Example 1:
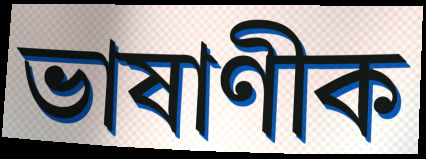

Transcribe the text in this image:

ভাষাণীক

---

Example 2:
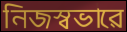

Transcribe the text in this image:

নিজস্বভাৱে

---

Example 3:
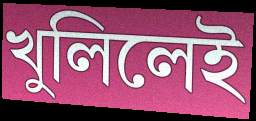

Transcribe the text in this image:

খুলিলেই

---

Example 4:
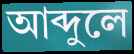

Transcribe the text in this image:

আব্দুলে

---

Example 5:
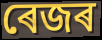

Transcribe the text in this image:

ৰেজৰ